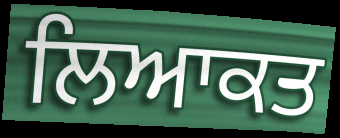
ਲਿਆਕਤ